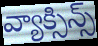
వ్యాక్సిన్స్